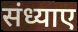
संध्याए